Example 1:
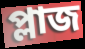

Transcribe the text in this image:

প্লাজ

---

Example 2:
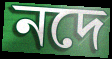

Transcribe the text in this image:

নদে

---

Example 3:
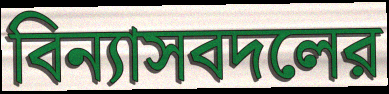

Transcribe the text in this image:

বিন্যাসবদলের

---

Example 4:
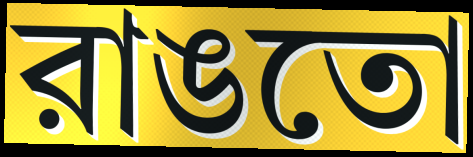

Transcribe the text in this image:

রাঙতো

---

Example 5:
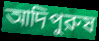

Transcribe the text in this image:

আদিপুরুষ